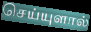
செய்யுளால்